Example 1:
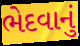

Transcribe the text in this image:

ભેદવાનું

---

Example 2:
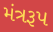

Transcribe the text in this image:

મંત્રરૂપ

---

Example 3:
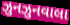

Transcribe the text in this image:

ઝુનઝુનવાલા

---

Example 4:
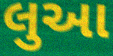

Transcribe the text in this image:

લુઆ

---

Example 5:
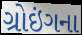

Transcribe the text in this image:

ગ્રોઇંગના